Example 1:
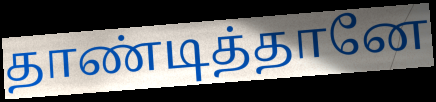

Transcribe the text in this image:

தாண்டித்தானே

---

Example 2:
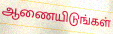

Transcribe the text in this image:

ஆணையிடுங்கள்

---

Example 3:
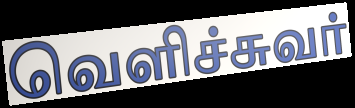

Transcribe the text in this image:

வெளிச்சுவர்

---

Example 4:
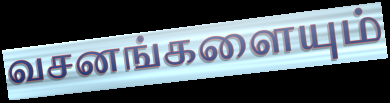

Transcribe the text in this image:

வசனங்களையும்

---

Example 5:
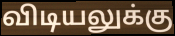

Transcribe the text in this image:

விடியலுக்கு